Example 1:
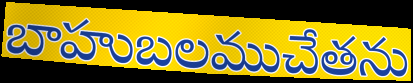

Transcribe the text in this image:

బాహుబలముచేతను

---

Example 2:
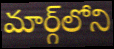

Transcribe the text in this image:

మార్గ్‌లోని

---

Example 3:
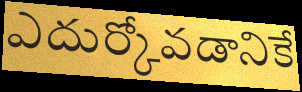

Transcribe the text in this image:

ఎదుర్కోవడానికే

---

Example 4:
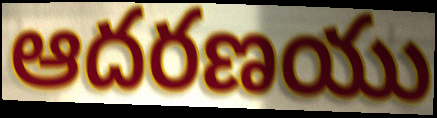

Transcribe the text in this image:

ఆదరణయు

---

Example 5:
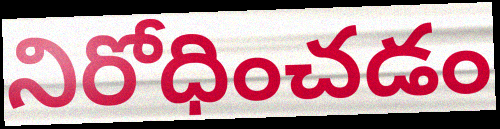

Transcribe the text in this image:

నిరోధించడం